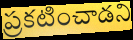
ప్రకటించాడని